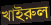
খাইরুল